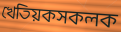
খেতিয়কসকলক